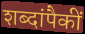
शब्दांपैकीं